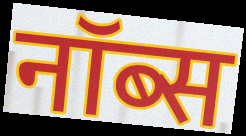
नॉब्स